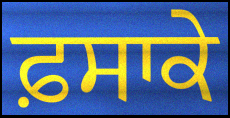
ਫ਼ਸਾਕੇ